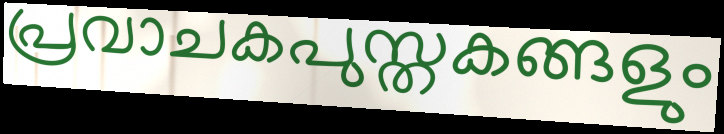
പ്രവാചകപുസ്തകങ്ങളും